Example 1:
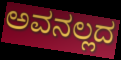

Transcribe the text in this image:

ಅವನಲ್ಲದ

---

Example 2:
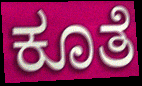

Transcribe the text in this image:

ಕೂತೆ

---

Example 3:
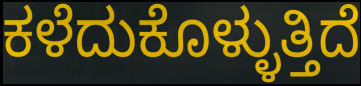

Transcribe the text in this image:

ಕಳೆದುಕೊಳ್ಳುತ್ತಿದೆ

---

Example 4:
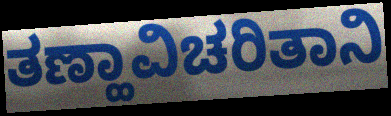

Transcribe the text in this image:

ತಣ್ಹಾವಿಚರಿತಾನಿ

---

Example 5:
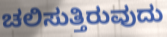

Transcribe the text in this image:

ಚಲಿಸುತ್ತಿರುವುದು